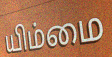
யிம்மை